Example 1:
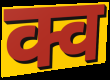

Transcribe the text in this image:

क्व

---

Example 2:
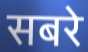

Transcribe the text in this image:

सबरे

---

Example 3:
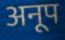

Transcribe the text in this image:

अनूप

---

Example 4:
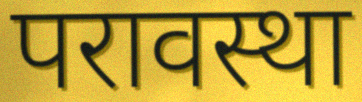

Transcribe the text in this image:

परावस्था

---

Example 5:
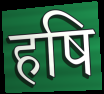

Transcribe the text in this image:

हषि